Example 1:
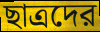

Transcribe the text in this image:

ছাত্রদের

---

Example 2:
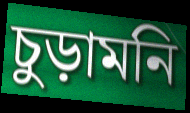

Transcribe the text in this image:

চুড়ামনি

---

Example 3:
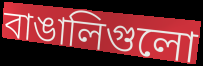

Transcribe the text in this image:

বাঙালিগুলো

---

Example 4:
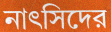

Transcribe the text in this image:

নাৎসিদের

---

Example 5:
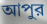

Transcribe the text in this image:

আপুর